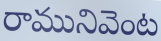
రామునివెంట